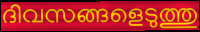
ദിവസങ്ങളെടുത്തു